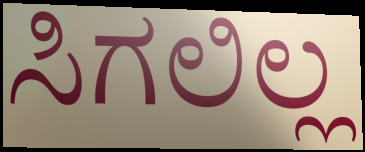
ಸಿಗಲಿಲ್ಲ